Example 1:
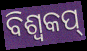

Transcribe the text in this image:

ବିଶ୍ୱକପ୍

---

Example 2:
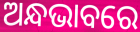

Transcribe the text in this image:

ଅନ୍ଧଭାବରେ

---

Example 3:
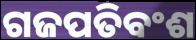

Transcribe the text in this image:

ଗଜପତିବଂଶ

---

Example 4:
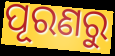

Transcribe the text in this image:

ପୂରଣରୁ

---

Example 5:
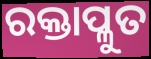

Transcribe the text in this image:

ରକ୍ତାପ୍ଳୁତ